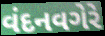
વંદનવગેરે